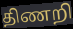
திணறி